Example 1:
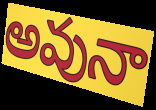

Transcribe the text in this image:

అవునా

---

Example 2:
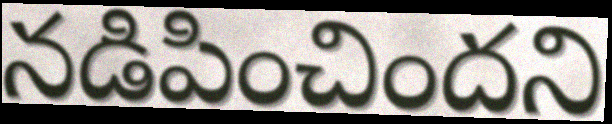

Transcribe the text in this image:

నడిపించిందని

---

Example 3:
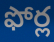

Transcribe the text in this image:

ఫోర్ల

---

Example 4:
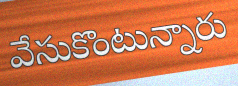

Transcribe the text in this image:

వేసుకొంటున్నారు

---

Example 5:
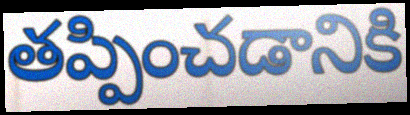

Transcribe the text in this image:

తప్పించడానికి